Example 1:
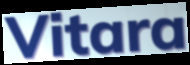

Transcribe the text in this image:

Vitara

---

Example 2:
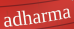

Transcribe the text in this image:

adharma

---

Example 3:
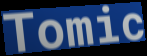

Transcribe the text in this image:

Tomic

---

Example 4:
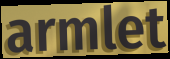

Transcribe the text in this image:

armlet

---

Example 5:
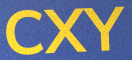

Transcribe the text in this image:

CXY